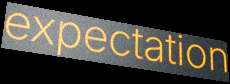
expectation